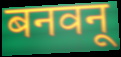
बनवनू